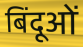
बिंदूओं